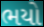
ભયો